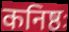
कनिष्ठः